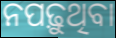
ନପଢ଼ୁଥିବା